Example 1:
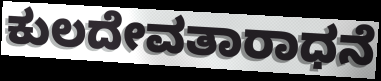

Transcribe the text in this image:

ಕುಲದೇವತಾರಾಧನೆ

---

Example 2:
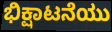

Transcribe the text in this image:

ಭಿಕ್ಷಾಟನೆಯು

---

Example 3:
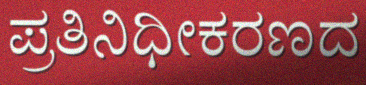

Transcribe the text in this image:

ಪ್ರತಿನಿಧೀಕರಣದ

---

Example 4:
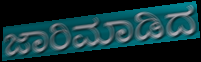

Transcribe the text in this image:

ಜಾರಿಮಾಡಿದ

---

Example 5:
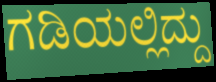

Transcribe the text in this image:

ಗಡಿಯಲ್ಲಿದ್ದು